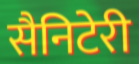
सैनिटेरी